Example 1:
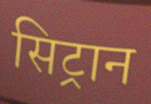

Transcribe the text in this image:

सिट्रान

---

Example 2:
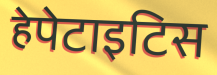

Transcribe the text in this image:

हेपेटाइटिस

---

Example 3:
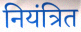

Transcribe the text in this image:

नियंत्रित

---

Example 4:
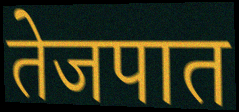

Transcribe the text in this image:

तेजपात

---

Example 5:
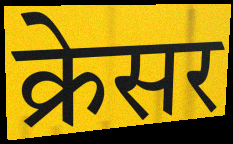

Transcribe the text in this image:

क्रेसर